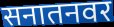
सनातनवर